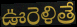
ఊరెళితే